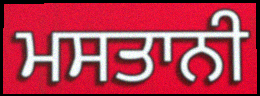
ਮਸਤਾਨੀ